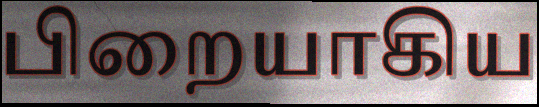
பிறையாகிய